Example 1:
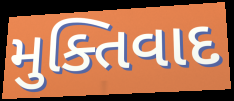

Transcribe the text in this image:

મુક્તિવાદ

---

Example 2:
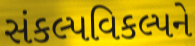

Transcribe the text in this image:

સંકલ્પવિકલ્પને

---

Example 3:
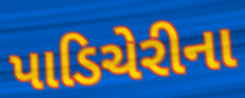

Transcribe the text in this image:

પાડિચેરીના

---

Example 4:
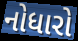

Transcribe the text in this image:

નોધારો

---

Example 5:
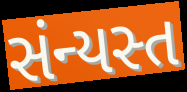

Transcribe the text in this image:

સંન્યસ્ત